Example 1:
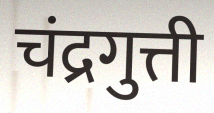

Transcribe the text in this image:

चंद्रगुत्ती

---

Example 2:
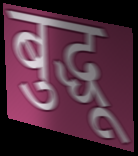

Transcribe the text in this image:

बुद्धू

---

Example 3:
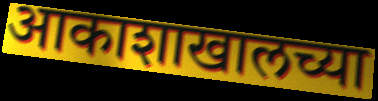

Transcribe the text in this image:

आकाशाखालच्या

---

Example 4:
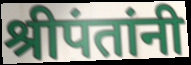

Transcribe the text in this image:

श्रीपंतांनी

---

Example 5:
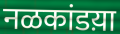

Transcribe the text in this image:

नळकांडय़ा